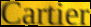
Cartier